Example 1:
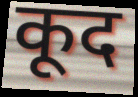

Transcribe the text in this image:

कूद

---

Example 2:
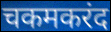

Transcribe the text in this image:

चकमकरंद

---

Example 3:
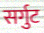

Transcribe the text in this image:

सर्गुट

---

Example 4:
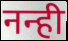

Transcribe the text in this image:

नन्ही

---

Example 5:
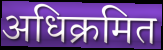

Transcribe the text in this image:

अधिक्रमित